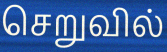
செறுவில்